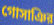
গোসাঞির